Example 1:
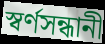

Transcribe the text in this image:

স্বর্ণসন্ধানী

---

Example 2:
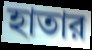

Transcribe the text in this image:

হাতার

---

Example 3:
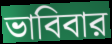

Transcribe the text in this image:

ভাবিবার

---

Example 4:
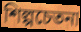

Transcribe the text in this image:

শিল্পচেতনা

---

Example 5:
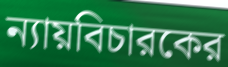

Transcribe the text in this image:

ন্যায়বিচারকের